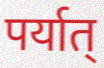
पर्यात्